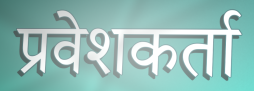
प्रवेशकर्ता